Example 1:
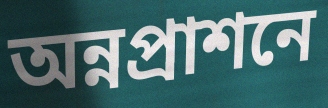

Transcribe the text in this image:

অন্নপ্রাশনে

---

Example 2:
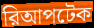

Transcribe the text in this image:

রিআপটেক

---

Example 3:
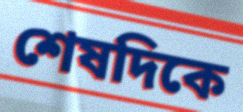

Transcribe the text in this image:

শেষদিকে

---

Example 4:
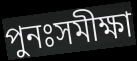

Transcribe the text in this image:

পুনঃসমীক্ষা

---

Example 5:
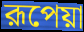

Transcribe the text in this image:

রূপেয়া